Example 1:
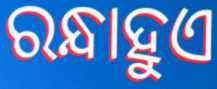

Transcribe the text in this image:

ରନ୍ଧାହୁଏ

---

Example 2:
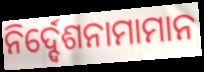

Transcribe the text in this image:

ନିର୍ଦ୍ଦେଶନାମାମାନ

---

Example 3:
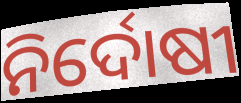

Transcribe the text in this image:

ନିର୍ଦୋଷୀ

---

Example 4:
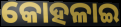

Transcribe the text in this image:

କୋହଳାଇ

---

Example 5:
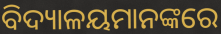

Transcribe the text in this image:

ବିଦ୍ୟାଳୟମାନଙ୍କରେ